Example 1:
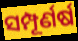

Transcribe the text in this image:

ସମ୍ପୂର୍ଣର୍ଷ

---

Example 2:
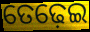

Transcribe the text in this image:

ତେଢ଼େଇ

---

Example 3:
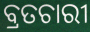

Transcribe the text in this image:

ବ୍ରତଚାରୀ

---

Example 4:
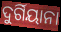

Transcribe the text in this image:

ଦୁର୍ଗିୟାନା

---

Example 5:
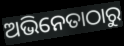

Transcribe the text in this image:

ଅଭିନେତାଠାରୁ